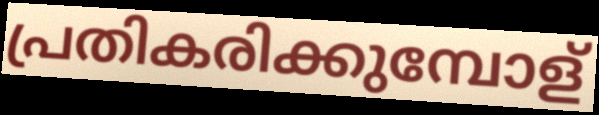
പ്രതികരിക്കുമ്പോള്